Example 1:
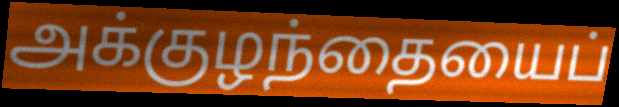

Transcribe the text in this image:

அக்குழந்தையைப்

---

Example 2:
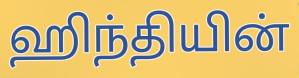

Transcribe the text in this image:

ஹிந்தியின்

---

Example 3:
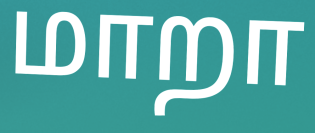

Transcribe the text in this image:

மாறா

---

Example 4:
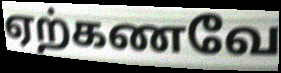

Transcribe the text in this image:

ஏற்கணவே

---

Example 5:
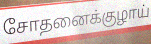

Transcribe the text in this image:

சோதனைக்குழாய்